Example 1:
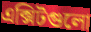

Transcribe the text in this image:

এক্সিটগুলো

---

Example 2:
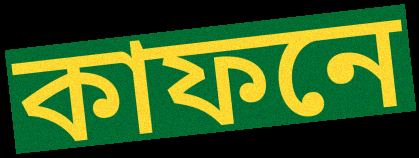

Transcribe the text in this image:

কাফনে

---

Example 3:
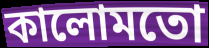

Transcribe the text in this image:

কালোমতো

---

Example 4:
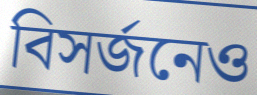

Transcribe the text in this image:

বিসর্জনেও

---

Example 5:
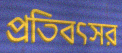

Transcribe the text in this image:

প্রতিবৎসর